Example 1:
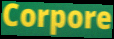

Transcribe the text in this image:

Corpore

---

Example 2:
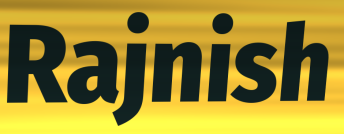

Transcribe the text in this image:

Rajnish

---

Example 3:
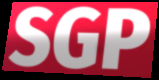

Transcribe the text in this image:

SGP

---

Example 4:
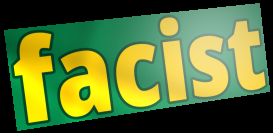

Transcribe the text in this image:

facist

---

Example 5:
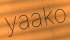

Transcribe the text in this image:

yaako